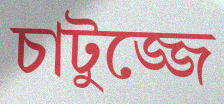
চাটুজ্জে